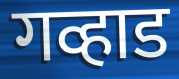
गव्हाड